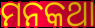
ମନକଥା